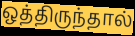
ஒத்திருந்தால்